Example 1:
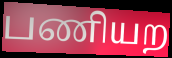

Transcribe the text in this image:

பணியற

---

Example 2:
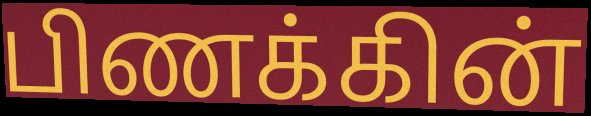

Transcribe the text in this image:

பிணக்கின்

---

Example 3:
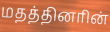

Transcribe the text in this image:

மதத்தினரின்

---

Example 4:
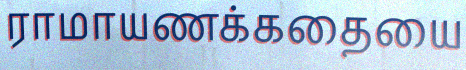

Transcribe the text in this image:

ராமாயணக்கதையை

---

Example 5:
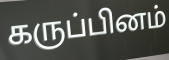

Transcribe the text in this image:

கருப்பினம்